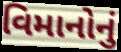
વિમાનોનું